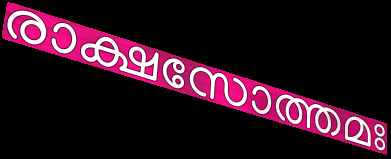
രാക്ഷസോത്തമഃ